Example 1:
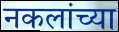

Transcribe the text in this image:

नकलांच्या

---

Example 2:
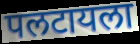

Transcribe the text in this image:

पलटायला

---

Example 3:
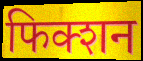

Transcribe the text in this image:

फिक्शन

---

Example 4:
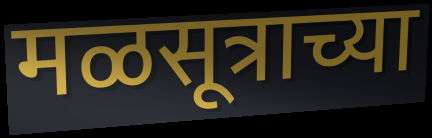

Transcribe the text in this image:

मळसूत्राच्या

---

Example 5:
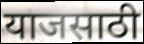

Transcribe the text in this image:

याजसाठी